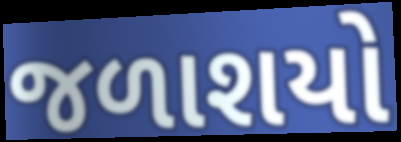
જળાશયો